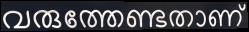
വരുത്തേണ്ടതാണ്